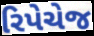
રિપેચેજ